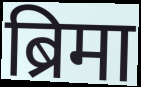
ब्रिमा